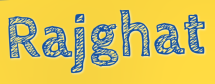
Rajghat